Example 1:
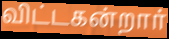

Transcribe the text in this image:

விட்டகன்றார்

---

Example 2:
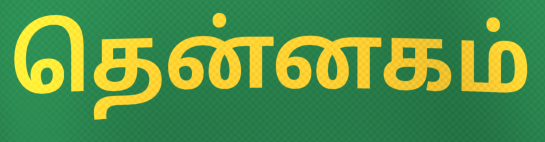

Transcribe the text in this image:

தென்னகம்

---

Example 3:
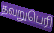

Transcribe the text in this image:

தவறுபெரி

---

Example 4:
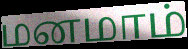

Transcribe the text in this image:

மனமாம்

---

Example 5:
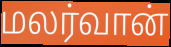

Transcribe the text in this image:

மலர்வான்